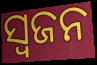
ସ୍ୱଜନ